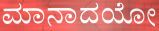
ಮಾನಾದಯೋ